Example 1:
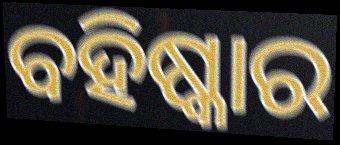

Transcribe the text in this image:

ବହିଷ୍କାର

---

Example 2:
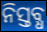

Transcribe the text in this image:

ନିସ୍ତବ୍ଧ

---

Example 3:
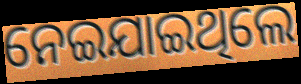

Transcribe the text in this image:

ନେଇଯାଇଥିଲେ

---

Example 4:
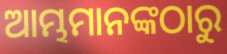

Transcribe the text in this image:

ଆମ୍ଭମାନଙ୍କଠାରୁ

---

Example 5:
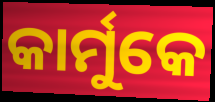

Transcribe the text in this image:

କାର୍ମୁକେ